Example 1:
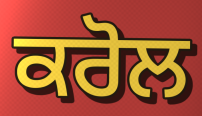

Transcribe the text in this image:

ਕਰੋਲ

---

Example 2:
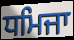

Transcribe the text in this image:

ਧਮਿਜਾ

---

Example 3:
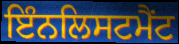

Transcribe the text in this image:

ਇੰਨਲਿਸਟਮੈਂਟ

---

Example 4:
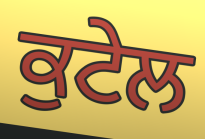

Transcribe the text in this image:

ਕੁਟੇਲ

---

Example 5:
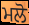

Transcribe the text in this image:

ਮਲੋ